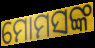
ମୋମସଙ୍କ